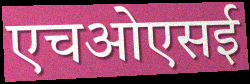
एचओएसई